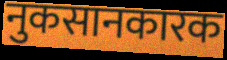
नुकसानकारक